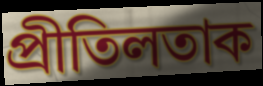
প্ৰীতিলতাক